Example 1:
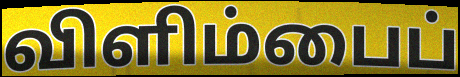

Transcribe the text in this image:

விளிம்பைப்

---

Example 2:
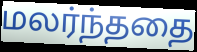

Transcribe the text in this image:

மலர்ந்ததை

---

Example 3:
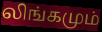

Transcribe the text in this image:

லிங்கமும்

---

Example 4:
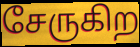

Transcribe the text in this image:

சேருகிற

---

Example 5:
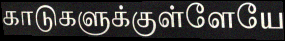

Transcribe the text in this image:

காடுகளுக்குள்ளேயே